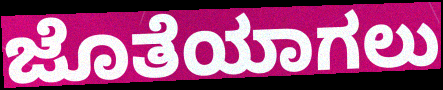
ಜೊತೆಯಾಗಲು